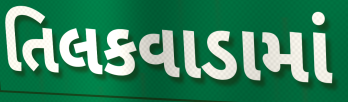
તિલકવાડામાં